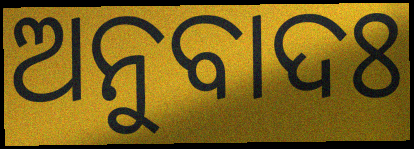
ଅନୁବାଦଃ